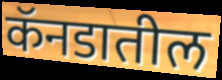
कॅनडातील